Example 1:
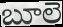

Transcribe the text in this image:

బూలె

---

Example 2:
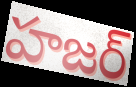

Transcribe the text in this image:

హజర్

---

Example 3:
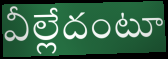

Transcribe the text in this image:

వీల్లేదంటూ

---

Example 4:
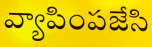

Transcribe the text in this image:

వ్యాపింపజేసి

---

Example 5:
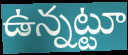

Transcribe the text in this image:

ఉన్నట్టూ